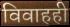
विवाहही